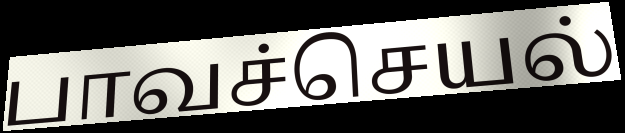
பாவச்செயல்